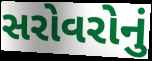
સરોવરોનું